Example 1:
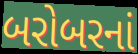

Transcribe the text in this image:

બરોબરનાં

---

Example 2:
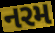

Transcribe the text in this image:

નરમ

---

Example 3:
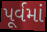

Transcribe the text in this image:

પૂર્વમાં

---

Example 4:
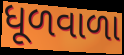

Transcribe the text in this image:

ધૂળવાળા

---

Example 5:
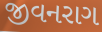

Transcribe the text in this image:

જીવનરાગ